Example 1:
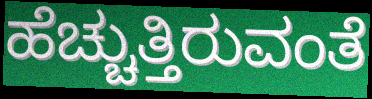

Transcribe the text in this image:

ಹೆಚ್ಚುತ್ತಿರುವಂತೆ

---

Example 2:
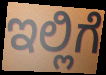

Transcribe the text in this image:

ಇಲ್ಲಿಗೆ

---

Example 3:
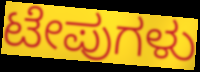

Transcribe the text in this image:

ಟೇಪುಗಳು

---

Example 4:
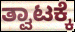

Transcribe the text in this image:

ತ್ವಾಟಕ್ಕೆ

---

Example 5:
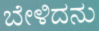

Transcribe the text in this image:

ಬೇಳಿದನು